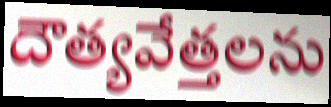
దౌత్యవేత్తలను